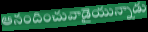
ఆనందించువాడైయున్నాడు